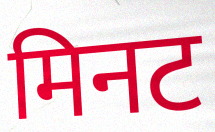
मिनट